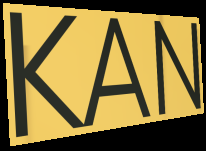
KAN